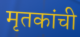
मृतकांची